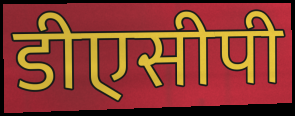
डीएसीपी